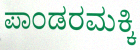
ಪಾಂಡರಮಕ್ಕಿ